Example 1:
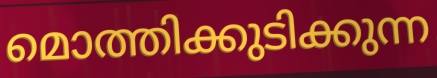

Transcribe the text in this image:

മൊത്തിക്കുടിക്കുന്ന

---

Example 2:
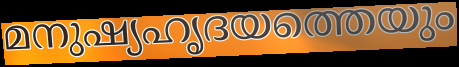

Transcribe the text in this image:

മനുഷ്യഹൃദയത്തെയും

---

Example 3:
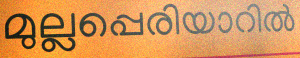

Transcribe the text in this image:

മുല്ലപ്പെരിയാറിൽ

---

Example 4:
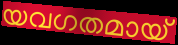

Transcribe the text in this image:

യവഗതമായ്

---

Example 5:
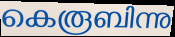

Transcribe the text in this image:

കെരൂബിന്നു